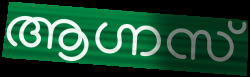
ആഗ്നസ്